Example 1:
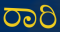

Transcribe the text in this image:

ರಾರಿ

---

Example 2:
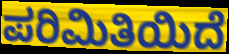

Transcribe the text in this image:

ಪರಿಮಿತಿಯಿದೆ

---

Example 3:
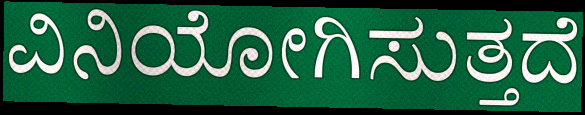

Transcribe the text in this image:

ವಿನಿಯೋಗಿಸುತ್ತದೆ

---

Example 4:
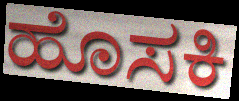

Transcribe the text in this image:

ಹೊಸಕಿ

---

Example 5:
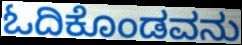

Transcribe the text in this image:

ಓದಿಕೊಂಡವನು